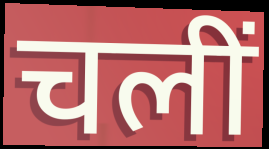
चलीं